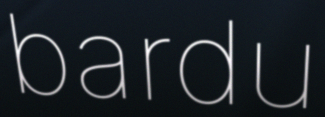
bardu